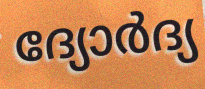
ദ്യോർദ്യ